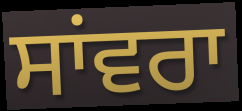
ਸਾਂਵਰਾ